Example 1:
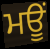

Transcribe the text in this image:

ਮਊਂ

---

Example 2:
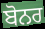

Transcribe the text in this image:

ਬੋਨਰ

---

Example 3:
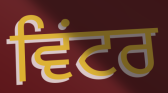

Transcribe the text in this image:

ਵਿਂਟਰ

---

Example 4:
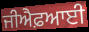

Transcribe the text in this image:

ਜੀਐਫ਼ਆਈ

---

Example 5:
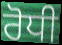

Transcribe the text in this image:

ਰੋਧੀ